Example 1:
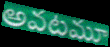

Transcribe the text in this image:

అవటమూ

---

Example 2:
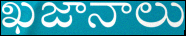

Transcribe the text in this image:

ఖజానాలు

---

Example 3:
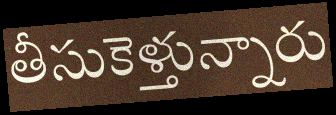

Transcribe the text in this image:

తీసుకెళ్తున్నారు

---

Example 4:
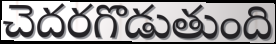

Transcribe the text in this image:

చెదరగొడుతుంది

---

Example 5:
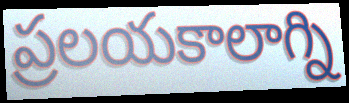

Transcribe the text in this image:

ప్రలయకాలాగ్ని